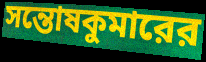
সন্তোষকুমারের